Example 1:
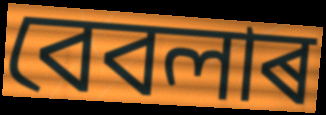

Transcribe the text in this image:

বেবলাৰ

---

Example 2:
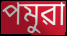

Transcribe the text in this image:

পমুৱা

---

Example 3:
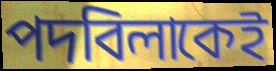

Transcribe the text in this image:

পদবিলাকেই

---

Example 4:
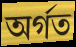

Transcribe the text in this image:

অৰ্গত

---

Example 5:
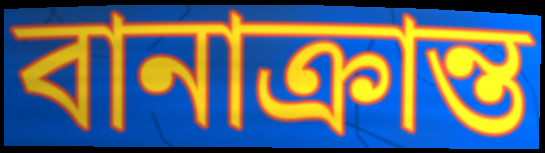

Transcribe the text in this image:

বানাক্ৰান্ত